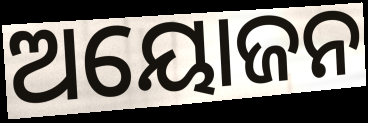
ଅୟୋଜନ